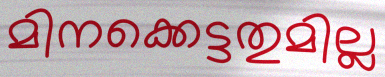
മിനക്കെട്ടതുമില്ല